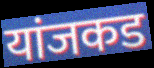
यांजकड